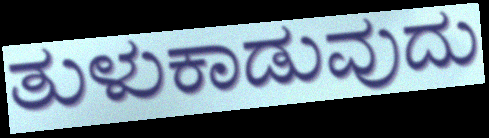
ತುಳುಕಾಡುವುದು